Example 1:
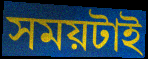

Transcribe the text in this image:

সময়টাই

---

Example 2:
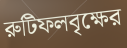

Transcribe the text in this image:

রুটিফলবৃক্ষের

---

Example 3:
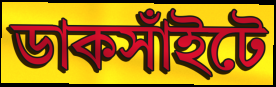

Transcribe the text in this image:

ডাকসাঁইটে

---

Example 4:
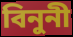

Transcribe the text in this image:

বিনুনী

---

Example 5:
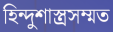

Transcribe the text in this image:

হিন্দুশাস্ত্রসম্মত